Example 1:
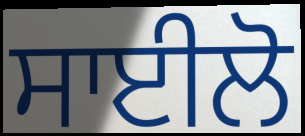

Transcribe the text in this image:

ਸਾਈਲੋ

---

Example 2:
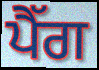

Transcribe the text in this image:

ਪੈੱਗ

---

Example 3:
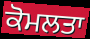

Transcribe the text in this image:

ਕੋਮਲਤਾ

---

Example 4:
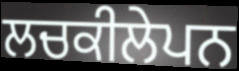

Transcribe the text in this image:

ਲਚਕੀਲੇਪਨ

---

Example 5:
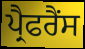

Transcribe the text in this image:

ਪ੍ਰੈਫਰੈਂਸ